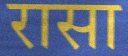
रासा